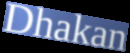
Dhakan